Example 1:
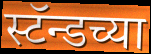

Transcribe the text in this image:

स्टॅन्डच्या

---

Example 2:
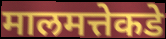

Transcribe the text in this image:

मालमत्तेकडे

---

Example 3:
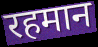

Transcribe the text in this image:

रहमान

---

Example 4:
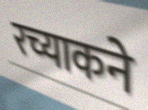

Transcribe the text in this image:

रच्याकने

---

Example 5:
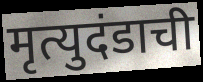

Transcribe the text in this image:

मृत्युदंडाची